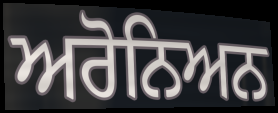
ਅਰੋਨਿਅਨ